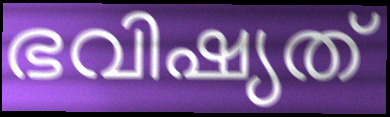
ഭവിഷ്യത്